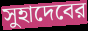
সুহাদেবের